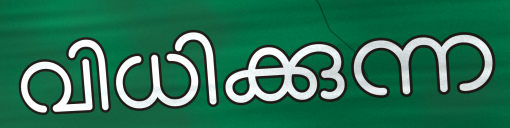
വിധിക്കുന്ന